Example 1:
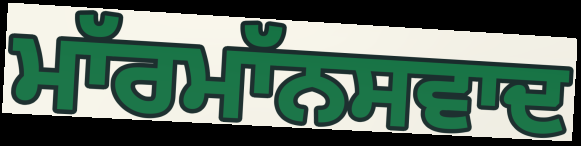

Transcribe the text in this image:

ਮਾੱਰਮਾੱਨਸਵਾਦ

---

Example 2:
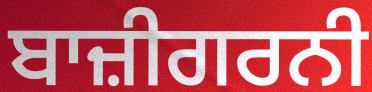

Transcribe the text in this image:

ਬਾਜ਼ੀਗਰਨੀ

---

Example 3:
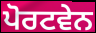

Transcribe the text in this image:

ਪੋਰਟਵੇਨ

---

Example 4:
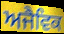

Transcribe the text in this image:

ਅਜੈਵਿਕ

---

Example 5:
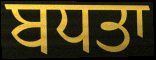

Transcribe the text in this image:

ਬਧਤਾ